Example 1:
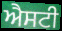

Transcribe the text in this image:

ਐਸਟੀ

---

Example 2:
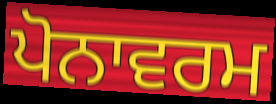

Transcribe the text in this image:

ਪੋਨਾਵਰਮ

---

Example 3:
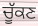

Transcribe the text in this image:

ਚੂੱਕਣ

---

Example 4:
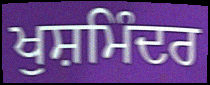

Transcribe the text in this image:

ਖੁਸ਼ਮਿੰਦਰ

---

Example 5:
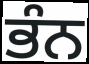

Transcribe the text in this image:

ਭੰਨ